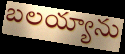
బలయ్యాను